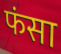
फंसा